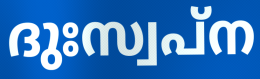
ദുഃസ്വപ്ന